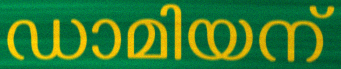
ഡാമിയന്